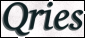
Qries